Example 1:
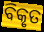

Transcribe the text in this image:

ବିକୃତ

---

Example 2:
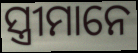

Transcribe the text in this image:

ସ୍ତ୍ରୀମାନେ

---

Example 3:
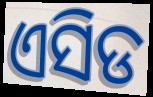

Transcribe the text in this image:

ଏସିଡ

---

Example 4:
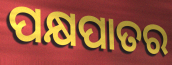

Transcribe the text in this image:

ପକ୍ଷପାତର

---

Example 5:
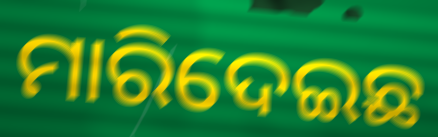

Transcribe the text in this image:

ମାରିଦେଇଛ